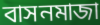
বাসনমাজা